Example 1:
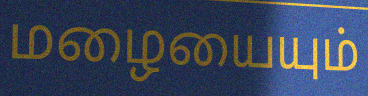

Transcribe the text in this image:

மழையையும்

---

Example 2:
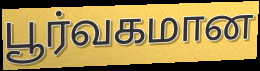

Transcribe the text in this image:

பூர்வகமான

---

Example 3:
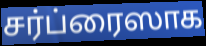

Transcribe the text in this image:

சர்ப்ரைஸாக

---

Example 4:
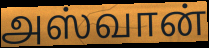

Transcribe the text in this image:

அஸ்வான்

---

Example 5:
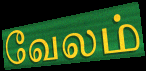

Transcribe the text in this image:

வேலம்